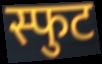
स्फुट